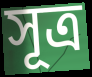
সূত্র